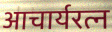
आचार्यरत्न